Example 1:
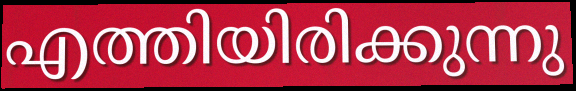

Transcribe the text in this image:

എത്തിയിരിക്കുന്നു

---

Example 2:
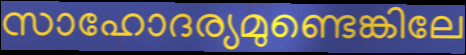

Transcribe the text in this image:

സാഹോദര്യമുണ്ടെങ്കിലേ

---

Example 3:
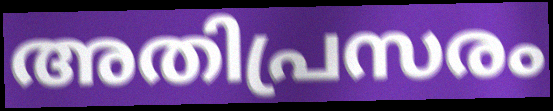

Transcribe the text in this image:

അതിപ്രസരം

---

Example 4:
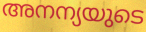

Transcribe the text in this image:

അനന്യയുടെ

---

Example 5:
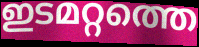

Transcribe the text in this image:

ഇടമറ്റത്തെ